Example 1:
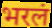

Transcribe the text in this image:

भरलं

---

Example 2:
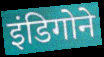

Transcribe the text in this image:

इंडिगोने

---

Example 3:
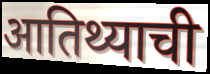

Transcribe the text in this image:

आतिथ्याची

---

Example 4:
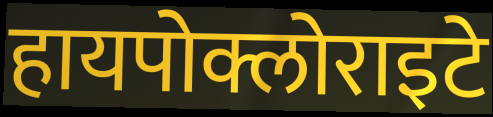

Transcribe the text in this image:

हायपोक्लोराइटे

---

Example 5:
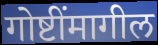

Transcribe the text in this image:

गोष्टींमागील